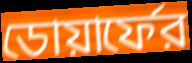
ডোয়ার্ফের